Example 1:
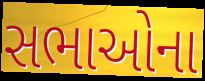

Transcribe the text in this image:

સભાઓના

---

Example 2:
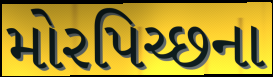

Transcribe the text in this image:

મોરપિચ્છના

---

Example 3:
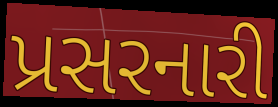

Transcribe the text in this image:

પ્રસરનારી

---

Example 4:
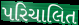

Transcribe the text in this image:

પરિચાલિત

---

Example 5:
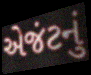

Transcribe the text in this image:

એજંટનું